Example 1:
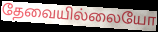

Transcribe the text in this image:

தேவையில்லையோ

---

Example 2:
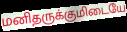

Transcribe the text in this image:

மனிதருக்குமிடையே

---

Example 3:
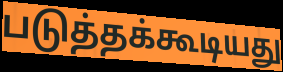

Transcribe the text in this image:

படுத்தக்கூடியது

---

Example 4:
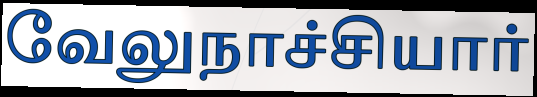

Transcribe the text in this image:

வேலுநாச்சியார்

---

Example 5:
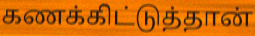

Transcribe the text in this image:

கணக்கிட்டுத்தான்